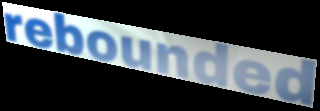
rebounded